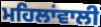
ਮਹਿਲਾਂਵਾਲੀ